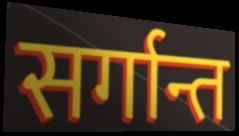
सर्गान्त